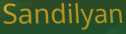
Sandilyan